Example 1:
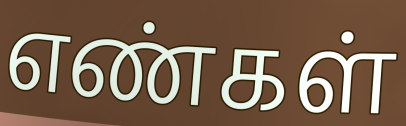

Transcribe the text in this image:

எண்கள்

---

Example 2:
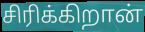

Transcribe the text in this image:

சிரிக்கிறான்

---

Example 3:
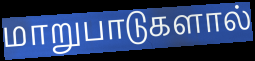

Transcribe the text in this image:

மாறுபாடுகளால்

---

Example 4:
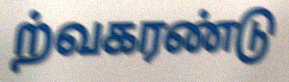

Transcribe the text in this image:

ற்வகரண்டு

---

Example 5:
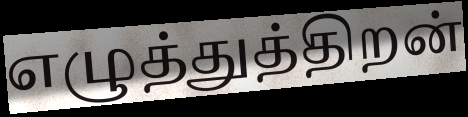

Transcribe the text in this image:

எழுத்துத்திறன்